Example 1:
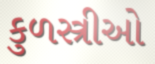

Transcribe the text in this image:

કુળસ્ત્રીઓ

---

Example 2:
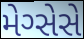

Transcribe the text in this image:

મેગ્સેસે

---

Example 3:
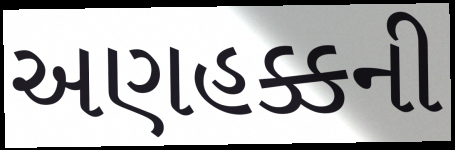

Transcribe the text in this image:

અણહક્કની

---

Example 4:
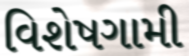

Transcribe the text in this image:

વિશેષગામી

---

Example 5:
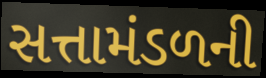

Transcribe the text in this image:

સત્તામંડળની